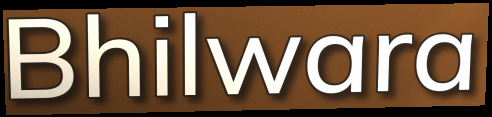
Bhilwara